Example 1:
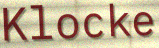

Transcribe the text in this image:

Klocke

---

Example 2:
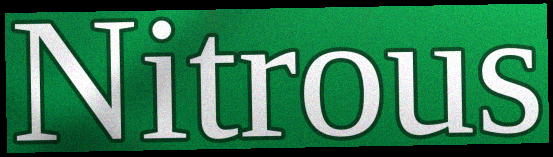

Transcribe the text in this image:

Nitrous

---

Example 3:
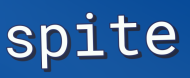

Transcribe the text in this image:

spite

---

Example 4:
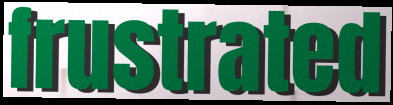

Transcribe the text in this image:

frustrated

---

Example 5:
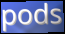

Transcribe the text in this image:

pods